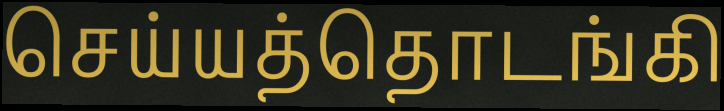
செய்யத்தொடங்கி